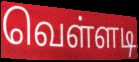
வெள்ளடி